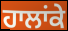
ਹਾਲਾਂਕੇ